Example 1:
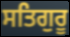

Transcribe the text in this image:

ਸਤਿਗੁਰੂ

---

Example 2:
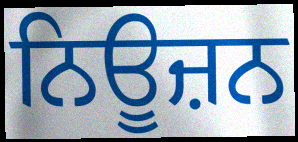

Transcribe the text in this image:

ਨਿਊਜ਼ਨ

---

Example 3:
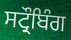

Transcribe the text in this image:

ਸਟ੍ਰੌਬਿੰਗ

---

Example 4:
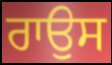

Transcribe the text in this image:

ਰਾਉਸ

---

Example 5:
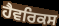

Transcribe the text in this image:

ਹੈਵਰਿਕਸ